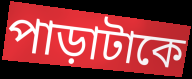
পাড়াটাকে